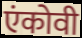
एंकोवी